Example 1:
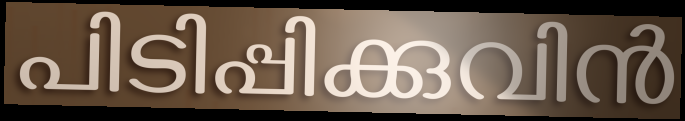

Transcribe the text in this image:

പിടിപ്പിക്കുവിൻ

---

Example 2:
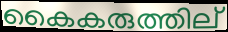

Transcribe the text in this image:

കൈകരുത്തില്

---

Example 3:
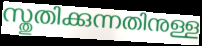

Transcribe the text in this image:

സ്തുതിക്കുന്നതിനുള്ള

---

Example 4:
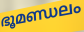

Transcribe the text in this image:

ഭൂമണ്ഡലം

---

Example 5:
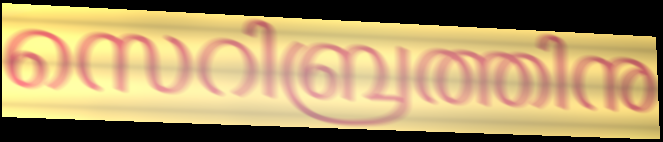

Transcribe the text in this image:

സെറിബ്രത്തിനു